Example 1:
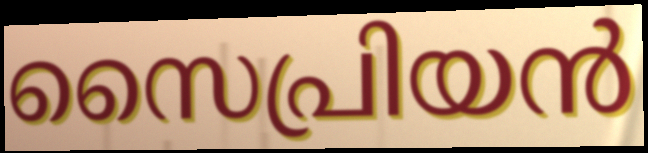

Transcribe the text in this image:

സൈപ്രിയൻ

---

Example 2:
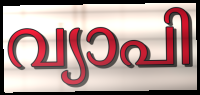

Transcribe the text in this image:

വ്യാപി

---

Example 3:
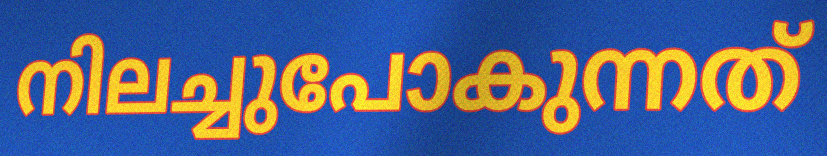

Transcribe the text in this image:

നിലച്ചുപോകുന്നത്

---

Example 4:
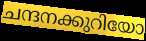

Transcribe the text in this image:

ചന്ദനക്കുറിയോ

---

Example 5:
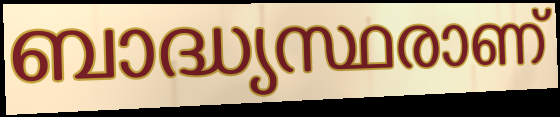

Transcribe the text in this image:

ബാദ്ധ്യസ്ഥരാണ്